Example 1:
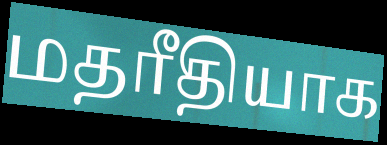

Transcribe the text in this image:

மதரீதியாக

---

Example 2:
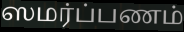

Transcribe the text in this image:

ஸமர்ப்பணம்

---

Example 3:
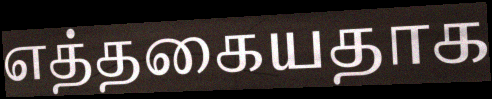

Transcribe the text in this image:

எத்தகையதாக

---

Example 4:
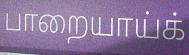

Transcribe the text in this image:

பாறையாய்க்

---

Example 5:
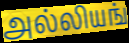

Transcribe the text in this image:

அல்லியங்